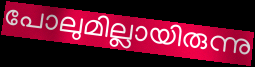
പോലുമില്ലായിരുന്നു